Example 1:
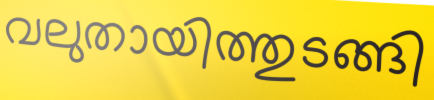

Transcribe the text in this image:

വലുതായിത്തുടങ്ങി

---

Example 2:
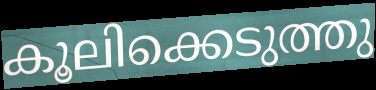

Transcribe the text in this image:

കൂലിക്കെടുത്തു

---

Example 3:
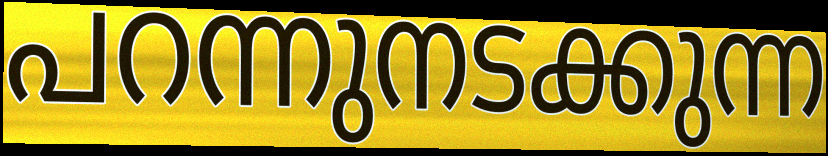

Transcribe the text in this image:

പറന്നുനടക്കുന്ന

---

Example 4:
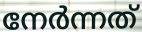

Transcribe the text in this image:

നേർന്നത്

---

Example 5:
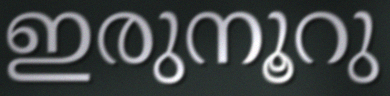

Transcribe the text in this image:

ഇരുനൂറു